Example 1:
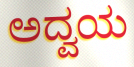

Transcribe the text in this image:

ಅದ್ವಯ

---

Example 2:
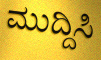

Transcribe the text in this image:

ಮುದ್ದಿಸಿ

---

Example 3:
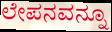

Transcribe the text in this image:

ಲೇಪನವನ್ನೂ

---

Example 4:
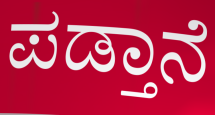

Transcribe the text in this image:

ಪಡ್ತಾನೆ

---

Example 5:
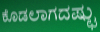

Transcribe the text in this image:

ಕೊಡಲಾಗದಷ್ಟು